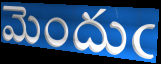
మెందుఁ